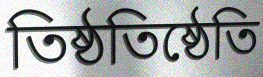
তিষ্ঠতিষ্ঠেতি